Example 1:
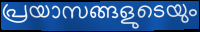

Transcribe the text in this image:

പ്രയാസങ്ങളുടെയും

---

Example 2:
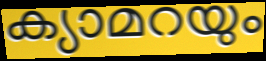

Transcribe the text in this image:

ക്യാമറയും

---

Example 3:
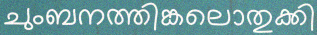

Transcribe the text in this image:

ചുംബനത്തിങ്കലൊതുക്കി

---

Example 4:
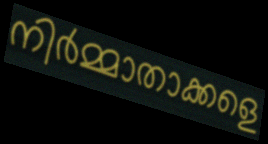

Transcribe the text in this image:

നിർമ്മാതാക്കളെ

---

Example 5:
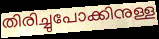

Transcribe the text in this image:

തിരിച്ചുപോക്കിനുള്ള